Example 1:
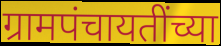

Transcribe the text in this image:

ग्रामपंचायतींच्या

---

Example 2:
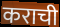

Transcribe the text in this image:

कराची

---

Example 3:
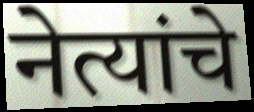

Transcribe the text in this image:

नेत्यांचे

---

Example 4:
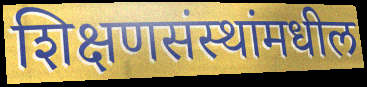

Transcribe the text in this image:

शिक्षणसंस्थांमधील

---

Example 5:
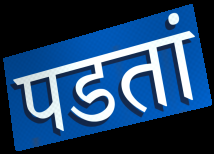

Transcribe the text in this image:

पडतां